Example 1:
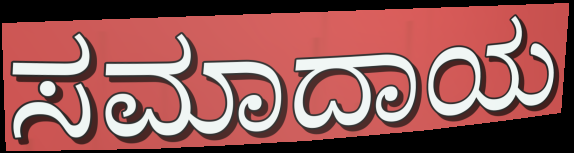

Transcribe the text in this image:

ಸಮಾದಾಯ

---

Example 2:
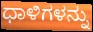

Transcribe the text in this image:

ಧಾಳಿಗಳನ್ನು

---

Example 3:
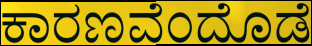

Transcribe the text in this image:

ಕಾರಣವೆಂದೊಡೆ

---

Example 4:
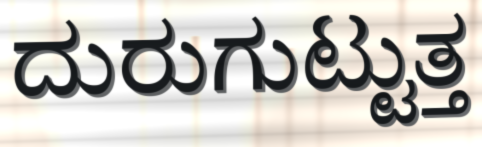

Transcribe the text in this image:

ದುರುಗುಟ್ಟುತ್ತ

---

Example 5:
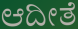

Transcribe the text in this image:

ಆದೀತೆ